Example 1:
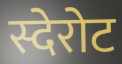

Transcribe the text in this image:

स्देरोट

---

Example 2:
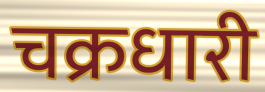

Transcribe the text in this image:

चक्रधारी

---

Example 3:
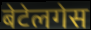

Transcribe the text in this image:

बेटेलगेस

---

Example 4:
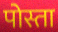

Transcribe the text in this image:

पोस्ता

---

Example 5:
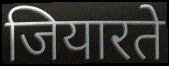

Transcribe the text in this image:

जियारते